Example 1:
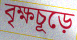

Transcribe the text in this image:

বৃক্ষচূড়ে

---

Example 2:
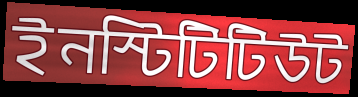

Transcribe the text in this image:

ইনস্টিটিটিউট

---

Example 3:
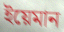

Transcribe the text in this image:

ইয়েমান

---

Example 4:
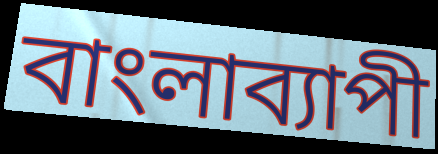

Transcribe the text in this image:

বাংলাব্যাপী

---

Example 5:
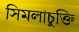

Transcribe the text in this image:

সিমলাচুক্তি